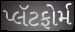
પ્લૅટફોર્મ